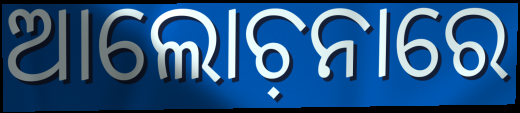
ଆଲୋଚ଼ନାରେ